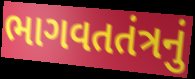
ભાગવતતંત્રનું